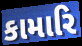
કામારિ